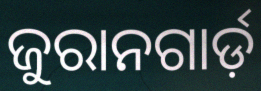
ଜୁରାନଗାର୍ଡ଼